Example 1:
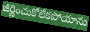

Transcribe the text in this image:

జీర్ణించుకోలేకపోయాను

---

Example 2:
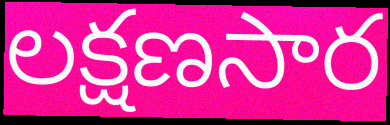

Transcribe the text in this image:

లక్షణసార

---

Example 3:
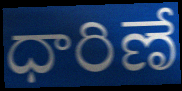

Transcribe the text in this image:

ధారిణే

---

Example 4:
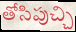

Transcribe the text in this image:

తోసిపుచ్చి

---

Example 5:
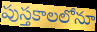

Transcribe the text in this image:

పుస్తకాలలోనూ